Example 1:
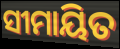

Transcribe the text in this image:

ସୀମାୟିତ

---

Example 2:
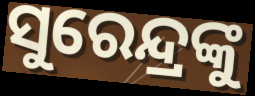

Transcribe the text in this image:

ସୁରେନ୍ଦ୍ରଙ୍କୁ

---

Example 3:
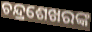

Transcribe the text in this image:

ଚନ୍ଦ୍ରଶେଖରଙ୍କ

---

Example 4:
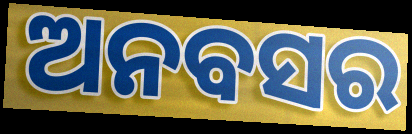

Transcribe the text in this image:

ଅନବସର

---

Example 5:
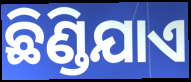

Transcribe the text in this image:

ଛିଣ୍ଡିଯାଏ